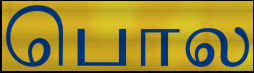
பொல